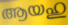
ആയഹു